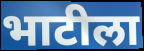
भाटीला